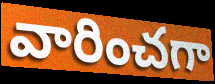
వారించగా